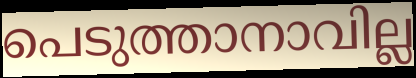
പെടുത്താനാവില്ല